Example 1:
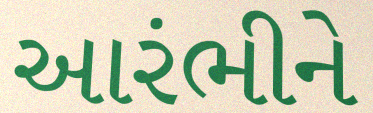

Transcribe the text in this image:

આરંભીને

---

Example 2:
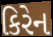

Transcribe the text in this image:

કિરેન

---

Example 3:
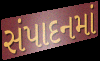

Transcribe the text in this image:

સંપાદનમાં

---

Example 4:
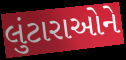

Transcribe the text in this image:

લુંટારાઓને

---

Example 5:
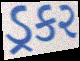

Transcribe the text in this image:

ડ્રકર